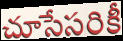
చూసేసరికీ